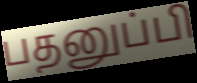
பதனுப்பி